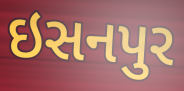
ઇસનપુર